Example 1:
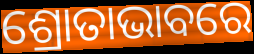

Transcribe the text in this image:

ଶ୍ରୋତାଭାବରେ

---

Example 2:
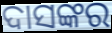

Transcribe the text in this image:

ଦାସଙ୍କର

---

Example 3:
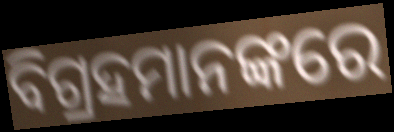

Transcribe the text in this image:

ବିଗ୍ରହମାନଙ୍କରେ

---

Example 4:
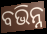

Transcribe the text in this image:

ବଭିନ୍ନ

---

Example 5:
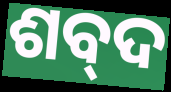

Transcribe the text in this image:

ଶବ୍‌ଦ